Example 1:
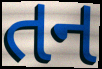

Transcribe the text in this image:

તન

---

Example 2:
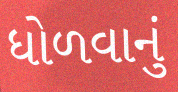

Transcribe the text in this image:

ધોળવાનું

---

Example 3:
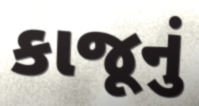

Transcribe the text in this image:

કાજૂનું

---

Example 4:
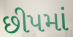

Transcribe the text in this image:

છીપમાં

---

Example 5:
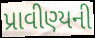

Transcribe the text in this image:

પ્રાવીણ્યની